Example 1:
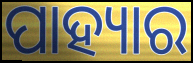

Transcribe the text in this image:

ପାହ୍ୟାର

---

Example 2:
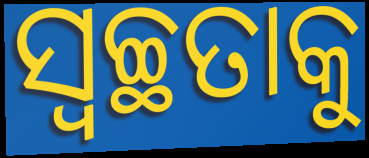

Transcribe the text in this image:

ସ୍ବଚ୍ଛତାକୁ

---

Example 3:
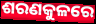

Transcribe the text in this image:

ଶରଣକୁଳରେ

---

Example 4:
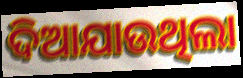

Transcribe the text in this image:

ଦିଆଯାଉଥିଲା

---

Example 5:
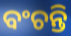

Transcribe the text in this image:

ବଂଚନ୍ତି